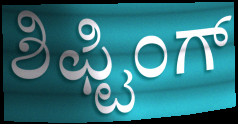
ಶಿಫ್ಟಿಂಗ್